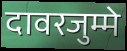
दावरजुम्मे